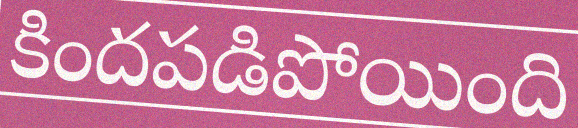
కిందపడిపోయింది